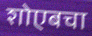
शोएबचा